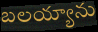
బలయ్యాను